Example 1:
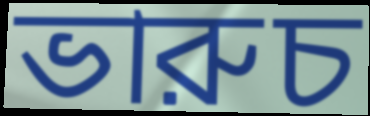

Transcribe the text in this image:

ভারুচ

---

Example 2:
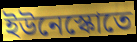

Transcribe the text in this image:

ইউনেস্কোতে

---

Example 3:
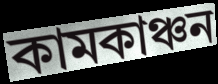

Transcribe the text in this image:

কামকাঞ্চন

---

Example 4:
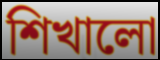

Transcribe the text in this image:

শিখালো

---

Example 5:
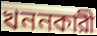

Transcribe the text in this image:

খননকারী